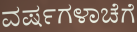
ವರ್ಷಗಳಾಚೆಗೆ